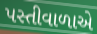
પસ્તીવાળાએ